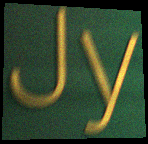
Jy